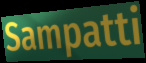
Sampatti